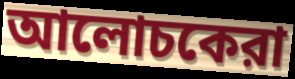
আলোচকেরা